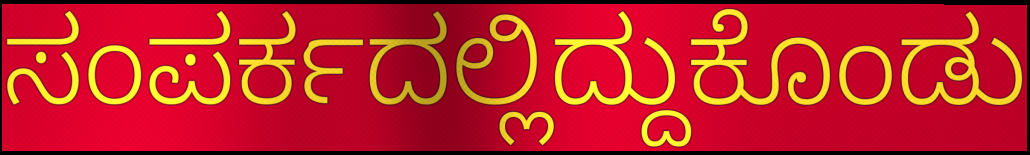
ಸಂಪರ್ಕದಲ್ಲಿದ್ದುಕೊಂಡು